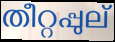
തീറ്റപ്പുല്